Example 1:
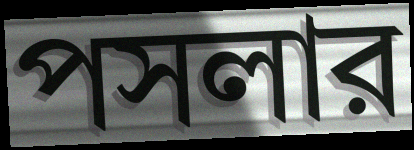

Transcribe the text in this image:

পসলার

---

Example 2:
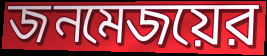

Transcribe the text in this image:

জনমেজয়ের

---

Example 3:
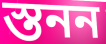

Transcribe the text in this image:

স্তনন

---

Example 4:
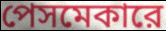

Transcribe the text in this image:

পেসমেকারে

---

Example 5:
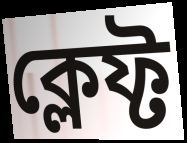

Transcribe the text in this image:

ক্লেফ্ট